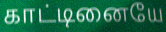
காட்டினையே